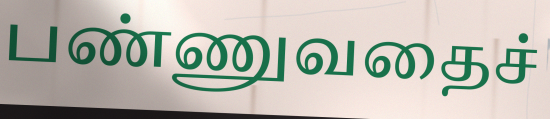
பண்ணுவதைச்